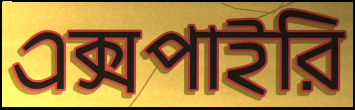
এক্সপাইরি